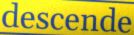
descende